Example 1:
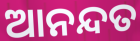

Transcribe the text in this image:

ଆନନ୍ଦତ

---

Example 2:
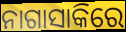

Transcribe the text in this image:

ନାଗାସାକିରେ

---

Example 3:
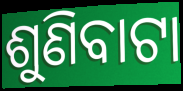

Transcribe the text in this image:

ଶୁଣିବାଟା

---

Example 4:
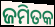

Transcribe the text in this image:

ଜମିତକ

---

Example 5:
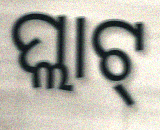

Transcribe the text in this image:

ପ୍ଲାଟ୍